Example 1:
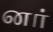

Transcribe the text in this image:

னர்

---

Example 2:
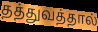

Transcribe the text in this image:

தத்துவத்தால்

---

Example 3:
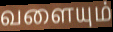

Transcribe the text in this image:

வளையும்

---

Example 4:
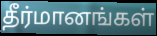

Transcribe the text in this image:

தீர்மானங்கள்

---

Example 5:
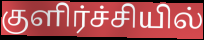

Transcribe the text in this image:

குளிர்ச்சியில்